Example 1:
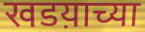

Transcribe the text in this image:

खडय़ाच्या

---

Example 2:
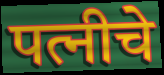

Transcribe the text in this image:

पत्‍नीचे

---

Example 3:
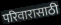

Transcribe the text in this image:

परिवारासाठी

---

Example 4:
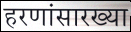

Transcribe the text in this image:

हरणांसारख्या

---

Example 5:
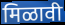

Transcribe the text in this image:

मिळावी